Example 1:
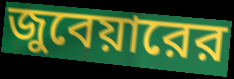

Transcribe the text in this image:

জুবেয়ারের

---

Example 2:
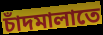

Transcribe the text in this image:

চাঁদমালাতে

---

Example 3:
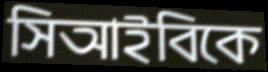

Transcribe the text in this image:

সিআইবিকে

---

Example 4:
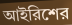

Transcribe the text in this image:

আইরিশের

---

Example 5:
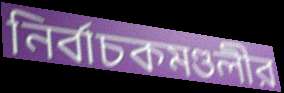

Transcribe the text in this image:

নির্বাচকমণ্ডলীর